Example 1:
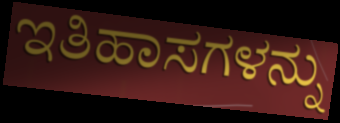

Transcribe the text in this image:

ಇತಿಹಾಸಗಳನ್ನು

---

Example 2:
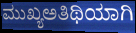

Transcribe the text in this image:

ಮುಖ್ಯಅತಿಥಿಯಾಗಿ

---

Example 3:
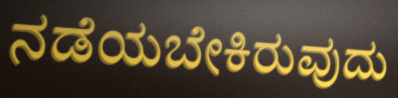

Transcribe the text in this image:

ನಡೆಯಬೇಕಿರುವುದು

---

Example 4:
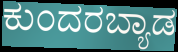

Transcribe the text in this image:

ಕುಂದರಬ್ಯಾಡ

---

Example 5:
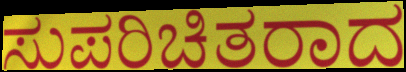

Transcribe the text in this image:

ಸುಪರಿಚಿತರಾದ